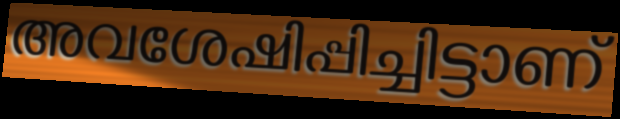
അവശേഷിപ്പിച്ചിട്ടാണ്